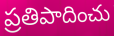
ప్రతిపాదించు